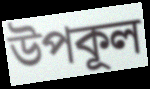
উপকূল